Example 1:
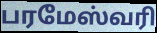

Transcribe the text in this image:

பரமேஸ்வரி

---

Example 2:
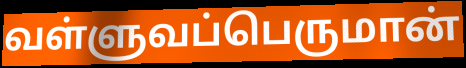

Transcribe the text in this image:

வள்ளுவப்பெருமான்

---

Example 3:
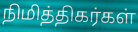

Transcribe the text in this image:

நிமித்திகர்கள்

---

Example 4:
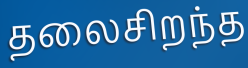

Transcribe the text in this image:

தலைசிறந்த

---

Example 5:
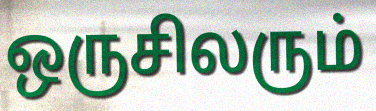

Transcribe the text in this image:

ஒருசிலரும்